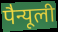
पैन्यूली